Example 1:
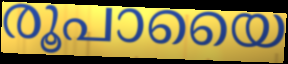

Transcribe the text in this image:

രൂപായൈ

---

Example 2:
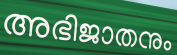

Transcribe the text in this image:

അഭിജാതനും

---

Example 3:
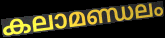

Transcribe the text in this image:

കലാമണ്ഡലം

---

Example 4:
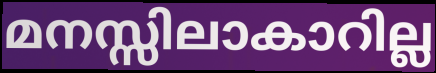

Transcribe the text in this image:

മനസ്സിലാകാറില്ല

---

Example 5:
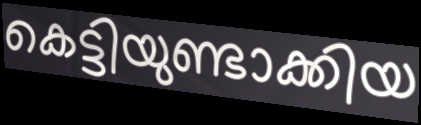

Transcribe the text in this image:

കെട്ടിയുണ്ടാക്കിയ